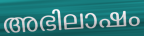
അഭിലാഷം